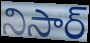
నిసార్